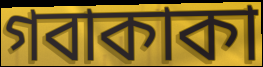
গবাকাকা